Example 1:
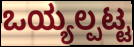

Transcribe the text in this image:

ಒಯ್ಯಲ್ಪಟ್ಟ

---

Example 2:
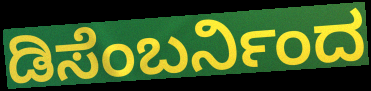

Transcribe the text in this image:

ಡಿಸೆಂಬರ್ನಿಂದ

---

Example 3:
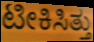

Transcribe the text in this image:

ಟೀಕಿಸಿತ್ತು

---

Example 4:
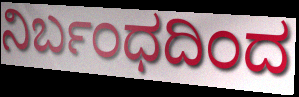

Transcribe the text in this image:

ನಿರ್ಬಂಧದಿಂದ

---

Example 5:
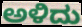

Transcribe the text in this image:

ಅಳಿದು